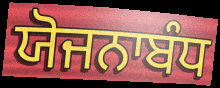
ਯੋਜਨਾਬੰਧ